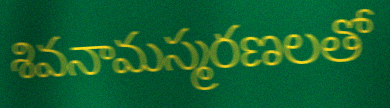
శివనామస్మరణలతో